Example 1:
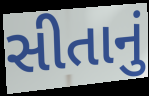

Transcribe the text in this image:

સીતાનું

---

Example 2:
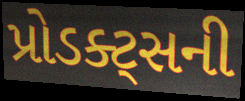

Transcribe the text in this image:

પ્રોડક્ટ્સની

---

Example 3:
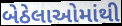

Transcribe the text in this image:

બેઠેલાઓમાંથી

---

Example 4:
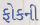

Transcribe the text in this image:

ફોકની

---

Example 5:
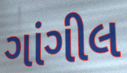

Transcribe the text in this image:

ગાંગીલ